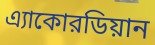
এ্যাকোরডিয়ান